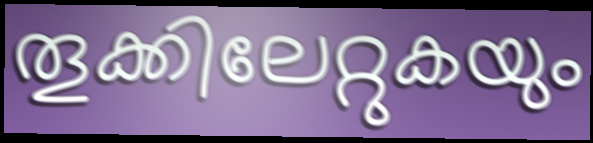
തൂക്കിലേറ്റുകയും